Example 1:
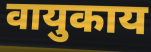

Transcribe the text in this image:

वायुकाय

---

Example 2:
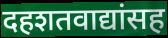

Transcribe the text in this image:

दहशतवाद्यांसह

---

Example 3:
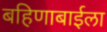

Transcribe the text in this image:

बहिणाबाईला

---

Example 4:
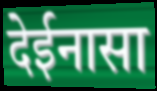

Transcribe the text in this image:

देईनासा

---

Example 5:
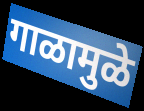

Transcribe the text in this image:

गाळामुळे